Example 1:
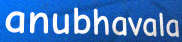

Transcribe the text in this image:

anubhavala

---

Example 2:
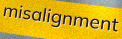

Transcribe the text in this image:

misalignment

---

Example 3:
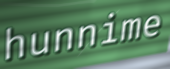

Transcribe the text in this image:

hunnime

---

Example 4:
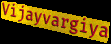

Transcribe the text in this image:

Vijayvargiya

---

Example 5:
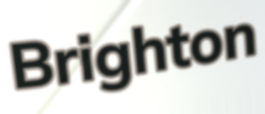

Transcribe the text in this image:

Brighton